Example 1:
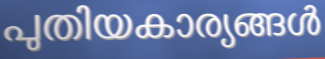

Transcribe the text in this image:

പുതിയകാര്യങ്ങൾ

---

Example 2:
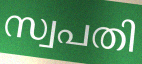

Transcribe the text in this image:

സ്വപതി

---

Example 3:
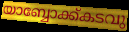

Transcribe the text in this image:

യാബ്ബോക്ക്കടവു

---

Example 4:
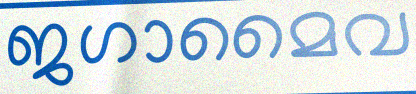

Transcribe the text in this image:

ജഗാമൈവ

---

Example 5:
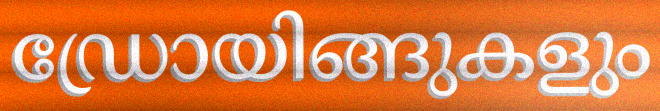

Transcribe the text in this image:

ഡ്രോയിങ്ങുകളും